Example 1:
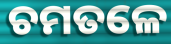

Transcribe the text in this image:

ଚମତଳେ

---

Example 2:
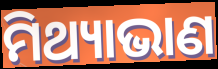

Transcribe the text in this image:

ମିଥ୍ୟାଭାଣ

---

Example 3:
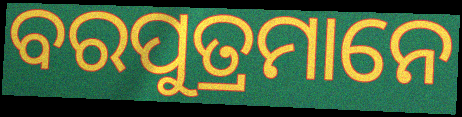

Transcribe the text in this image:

ବରପୁତ୍ରମାନେ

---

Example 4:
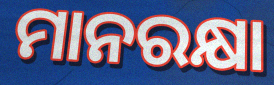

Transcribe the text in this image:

ମାନରକ୍ଷା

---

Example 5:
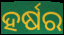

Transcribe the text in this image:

ହର୍ଷର